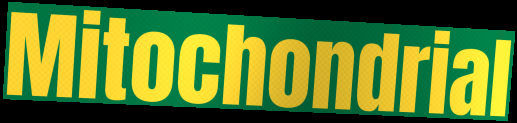
Mitochondrial